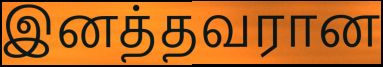
இனத்தவரான